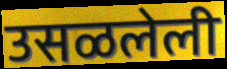
उसळलेली